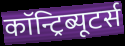
कॉन्ट्रिब्यूटर्स